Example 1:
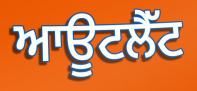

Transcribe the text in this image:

ਆਊਟਲੈੱਟ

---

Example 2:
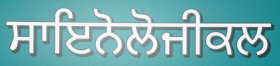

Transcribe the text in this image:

ਸਾਇਨੋਲੋਜੀਕਲ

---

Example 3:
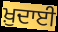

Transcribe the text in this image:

ਖ਼ੁਦਾਈ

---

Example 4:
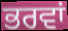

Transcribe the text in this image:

ਭਰਵਾਂ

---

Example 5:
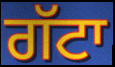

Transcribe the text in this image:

ਗੱਟਾ